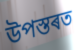
উপস্তৰত